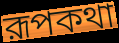
রূপকথা